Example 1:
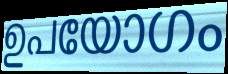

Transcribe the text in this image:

ഉപയോഗം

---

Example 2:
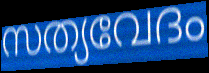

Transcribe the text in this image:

സത്യവേദം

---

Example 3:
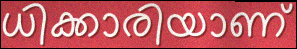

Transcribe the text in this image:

ധിക്കാരിയാണ്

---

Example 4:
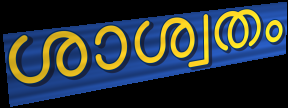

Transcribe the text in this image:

ശാശ്വതം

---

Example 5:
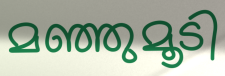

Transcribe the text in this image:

മഞ്ഞുമൂടി